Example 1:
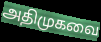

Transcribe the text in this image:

அதிமுகவை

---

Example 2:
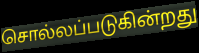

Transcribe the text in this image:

சொல்லப்படுகின்றது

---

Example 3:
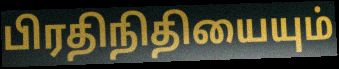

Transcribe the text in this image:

பிரதிநிதியையும்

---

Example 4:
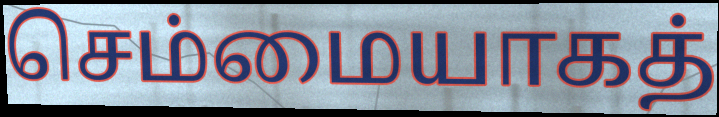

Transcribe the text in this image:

செம்மையாகத்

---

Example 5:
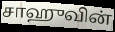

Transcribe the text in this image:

சாஹுவின்